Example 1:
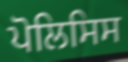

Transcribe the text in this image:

ਪੋਲਿਸਿਸ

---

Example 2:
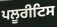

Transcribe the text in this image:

ਪਲੂਰੀਟਿਸ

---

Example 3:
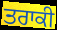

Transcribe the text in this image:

ਤਰਾਕੀ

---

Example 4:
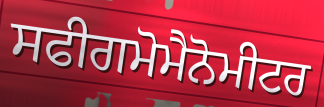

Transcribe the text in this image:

ਸਫੀਗਮੋਮੈਨੋਮੀਟਰ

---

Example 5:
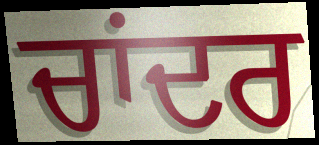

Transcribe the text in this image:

ਚਾਂਦਰ